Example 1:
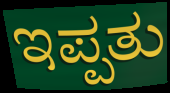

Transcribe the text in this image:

ಇಪ್ಪತು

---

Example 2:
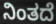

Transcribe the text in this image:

ನಿಂತದೆ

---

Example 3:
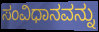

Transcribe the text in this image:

ಸಂವಿಧಾನವನ್ನು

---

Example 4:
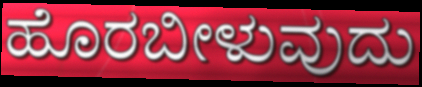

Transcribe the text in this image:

ಹೊರಬೀಳುವುದು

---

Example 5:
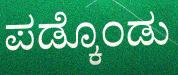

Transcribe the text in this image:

ಪಡ್ಕೊಂಡು